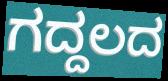
ಗದ್ದಲದ